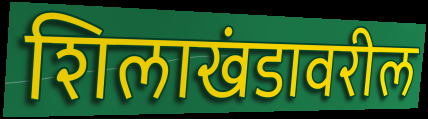
शिलाखंडावरील